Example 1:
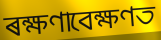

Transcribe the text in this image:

ৰক্ষণাবেক্ষণত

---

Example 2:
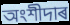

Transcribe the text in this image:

অংশীদাৰ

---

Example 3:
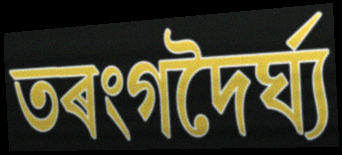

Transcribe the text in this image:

তৰংগদৈৰ্ঘ্য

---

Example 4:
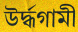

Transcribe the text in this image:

উৰ্দ্ধগামী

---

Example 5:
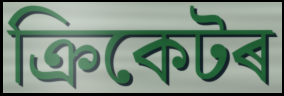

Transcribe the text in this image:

ক্ৰিকেটৰ